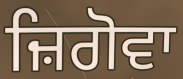
ਜ਼ਿਗੋਵਾ